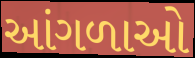
આંગળાઓ